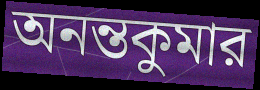
অনন্তকুমার